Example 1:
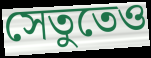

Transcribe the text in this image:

সেতুতেও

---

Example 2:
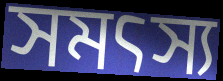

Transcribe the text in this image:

সমৎস্য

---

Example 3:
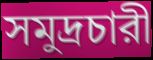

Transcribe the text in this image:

সমুদ্রচারী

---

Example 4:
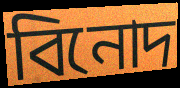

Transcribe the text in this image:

বিনোদ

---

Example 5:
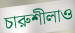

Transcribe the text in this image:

চারুশীলাও